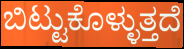
ಬಿಟ್ಟುಕೊಳ್ಳುತ್ತದೆ